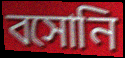
বসোনি